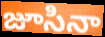
జూసినా